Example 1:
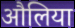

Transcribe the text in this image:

औलिया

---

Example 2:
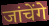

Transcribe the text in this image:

जांचेंगे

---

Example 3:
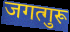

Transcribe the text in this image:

जगत्गुरू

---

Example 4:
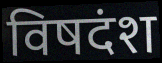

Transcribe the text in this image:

विषदंश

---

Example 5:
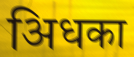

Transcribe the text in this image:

अिधका